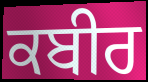
ਕਬੀਰ